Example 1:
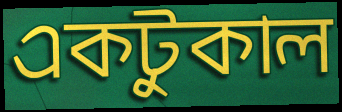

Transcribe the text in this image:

একটুকাল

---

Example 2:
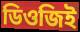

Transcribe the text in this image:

ডিওজিই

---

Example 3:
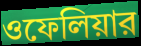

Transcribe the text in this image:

ওফেলিয়ার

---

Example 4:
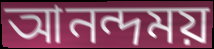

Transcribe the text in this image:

আনন্দময়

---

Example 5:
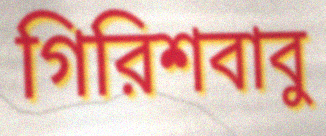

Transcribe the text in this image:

গিরিশবাবু